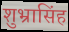
शुभ्रासिंह